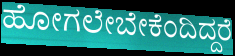
ಹೋಗಲೇಬೇಕೆಂದಿದ್ದರೆ